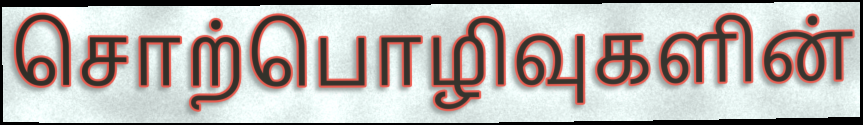
சொற்பொழிவுகளின்